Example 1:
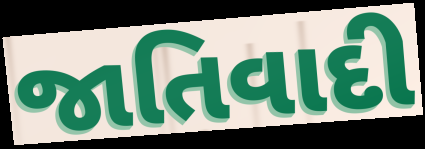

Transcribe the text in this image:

જાતિવાદી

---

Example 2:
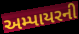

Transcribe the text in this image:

અમ્પાયરની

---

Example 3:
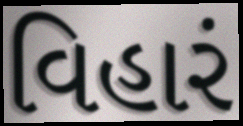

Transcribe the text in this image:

વિહારં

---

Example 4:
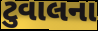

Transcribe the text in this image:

ટુવાલના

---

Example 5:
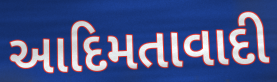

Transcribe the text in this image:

આદિમતાવાદી